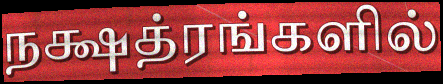
நக்ஷத்ரங்களில்